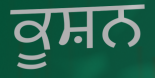
ਕੂਸ਼ਨ